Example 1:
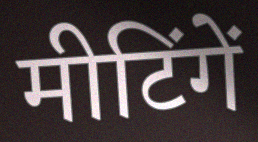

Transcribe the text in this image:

मीटिंगें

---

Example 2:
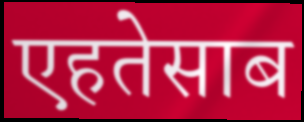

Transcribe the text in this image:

एहतेसाब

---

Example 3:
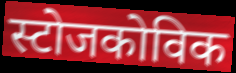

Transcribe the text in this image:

स्टोजकोविक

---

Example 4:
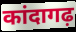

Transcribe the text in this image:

कांदागढ़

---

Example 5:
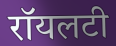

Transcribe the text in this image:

रॉयलटी